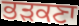
ਭੜਕਣਾ